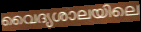
വൈദ്യശാലയിലെ